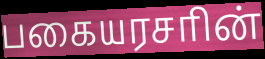
பகையரசரின்